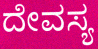
ದೇವಸ್ಯ